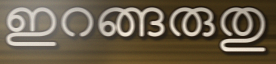
ഇറങ്ങരുതു